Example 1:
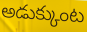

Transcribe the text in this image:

అడుక్కుంట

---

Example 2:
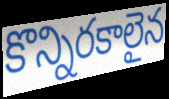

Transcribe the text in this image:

కొన్నిరకాలైన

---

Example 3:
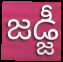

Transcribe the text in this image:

జడ్జీ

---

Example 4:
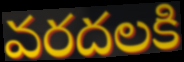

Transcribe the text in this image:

వరదలకి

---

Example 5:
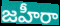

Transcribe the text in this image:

జహీరా